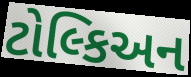
ટોલ્કિઅન